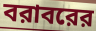
বরাবরের